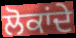
ਲੋਕਾਂਦੇ